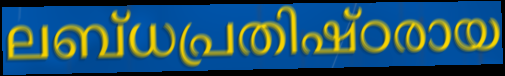
ലബ്ധപ്രതിഷ്ഠരായ